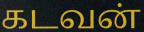
கடவன்